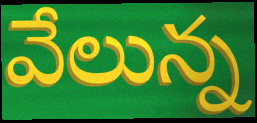
వేలున్న